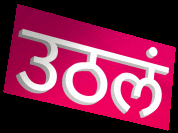
उठलं